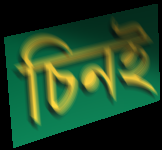
চিনই